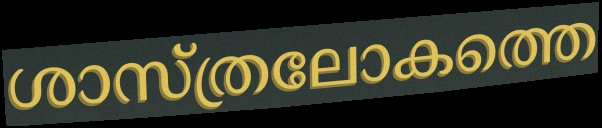
ശാസ്ത്രലോകത്തെ